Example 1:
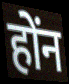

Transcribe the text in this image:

होंन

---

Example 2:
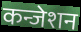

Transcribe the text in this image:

कन्जेशन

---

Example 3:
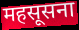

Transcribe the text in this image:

महसूसना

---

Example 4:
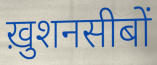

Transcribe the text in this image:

ख़ुशनसीबों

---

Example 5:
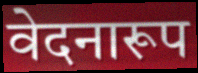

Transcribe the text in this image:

वेदनारूप